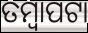
ତମ୍ବାପଟା